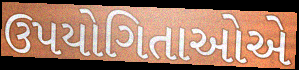
ઉપયોગિતાઓએ